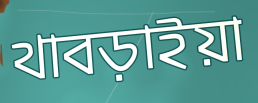
থাবড়াইয়া